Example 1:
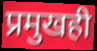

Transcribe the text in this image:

प्रमुखही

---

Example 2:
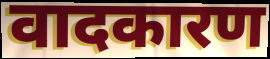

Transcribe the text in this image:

वादकारण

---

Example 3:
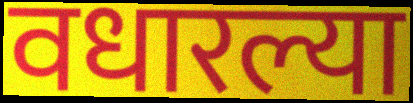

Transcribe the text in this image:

वधारल्या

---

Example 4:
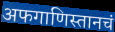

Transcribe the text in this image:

अफगाणिस्तानचं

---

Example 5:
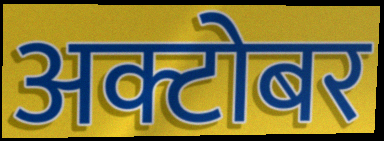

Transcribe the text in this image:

अक्टोबर